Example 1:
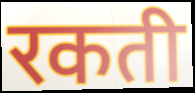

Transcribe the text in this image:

रकती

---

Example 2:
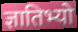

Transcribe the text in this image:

ज्ञातिभ्यो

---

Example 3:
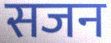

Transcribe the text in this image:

सजन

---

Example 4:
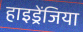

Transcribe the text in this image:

हाइड्रेंजिया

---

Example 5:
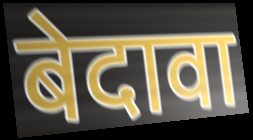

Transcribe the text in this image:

बेदावा